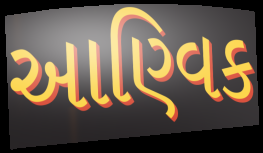
આણ્વિક